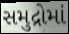
સમુદ્રોમાં